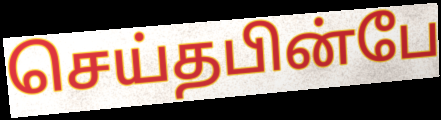
செய்தபின்பே